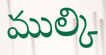
ముల్కి